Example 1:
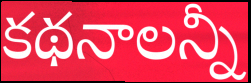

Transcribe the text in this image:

కథనాలన్నీ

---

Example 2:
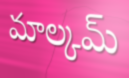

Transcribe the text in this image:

మాల్కమ్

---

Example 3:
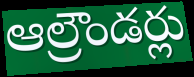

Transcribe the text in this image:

ఆల్రౌండర్లు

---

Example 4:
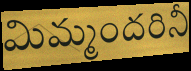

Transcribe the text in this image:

మిమ్మందరినీ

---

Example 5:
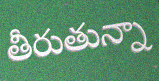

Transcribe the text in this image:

తీరుతున్నా